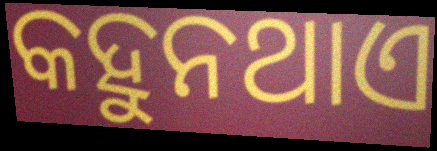
କହୁନଥାଏ